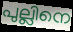
പുല്ലിനെ